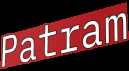
Patram